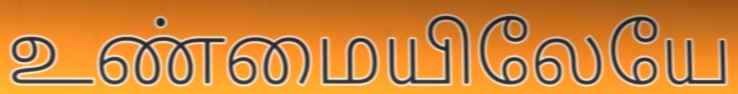
உண்மையிலேயே